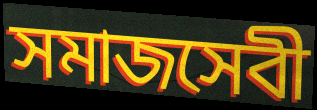
সমাজসেবী